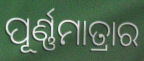
ପୂର୍ଣ୍ଣମାତ୍ରାର